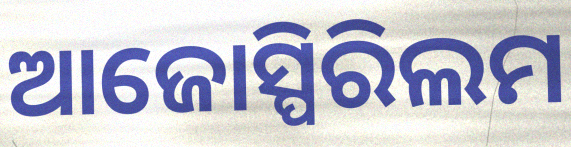
ଆଜୋସ୍ପିରିଲମ